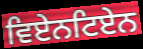
ਵਿਏਨਟਿਏਨ